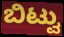
ಬಿಟ್ವು